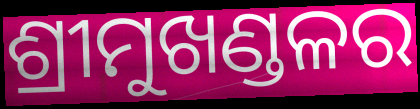
ଶ୍ରୀମୁଖଣ୍ଡଳର